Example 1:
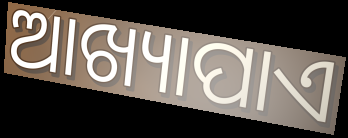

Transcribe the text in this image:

ଆଖ୍ୟାପାଏ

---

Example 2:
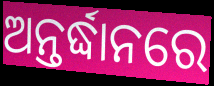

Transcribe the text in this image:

ଅନ୍ତର୍ଦ୍ଧାନରେ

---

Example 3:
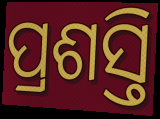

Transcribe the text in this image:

ପ୍ରଶସ୍ତି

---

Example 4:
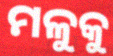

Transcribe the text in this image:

ମଳୁକୁ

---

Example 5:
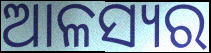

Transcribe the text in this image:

ଆଳସ୍ୟର